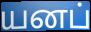
யனப்